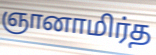
ஞானாமிர்த